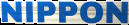
NIPPON